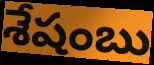
శేషంబు